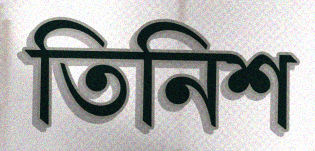
তিনিশ